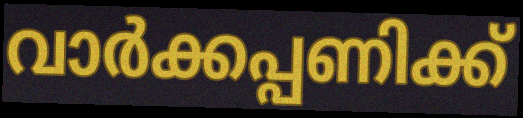
വാർക്കപ്പണിക്ക്